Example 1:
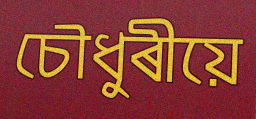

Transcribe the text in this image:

চৌধুৰীয়ে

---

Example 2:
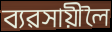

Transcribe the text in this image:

ব্যৱসায়ীলৈ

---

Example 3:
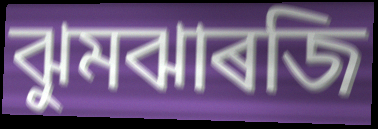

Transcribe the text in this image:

ঝুমঝাৰজি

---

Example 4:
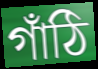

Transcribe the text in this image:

গাঁঠি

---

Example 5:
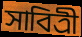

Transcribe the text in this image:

সাবিত্ৰী